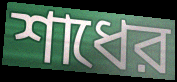
শাধের